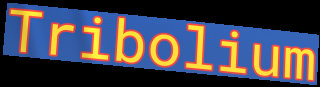
Tribolium